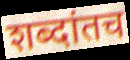
शब्दांतच